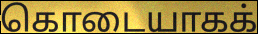
கொடையாகக்